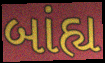
બાંહ્ય